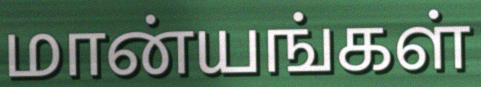
மான்யங்கள்